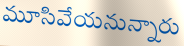
మూసివేయనున్నారు